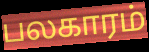
பலகாரம்